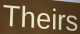
Theirs